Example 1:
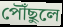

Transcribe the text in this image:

পৌঁছুলে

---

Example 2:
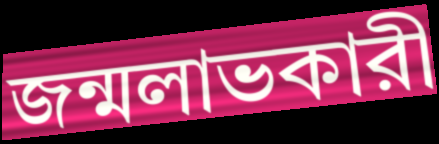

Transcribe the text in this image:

জন্মলাভকারী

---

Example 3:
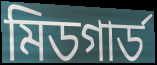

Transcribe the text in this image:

মিডগার্ড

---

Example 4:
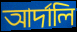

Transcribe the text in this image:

আর্দালি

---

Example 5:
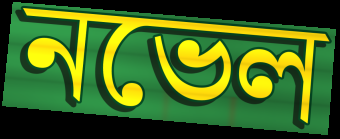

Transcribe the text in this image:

নভেল